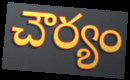
చౌర్యం